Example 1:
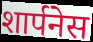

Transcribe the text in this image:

शार्पनेस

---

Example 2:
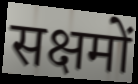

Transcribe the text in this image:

सक्षमों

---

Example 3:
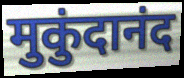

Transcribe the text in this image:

मुकुंदानंद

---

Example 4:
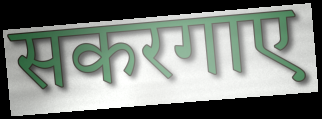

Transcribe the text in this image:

सकरगाए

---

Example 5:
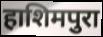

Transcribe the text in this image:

हाशिमपुरा